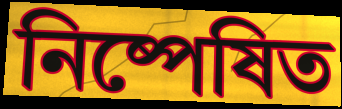
নিষ্পেষিত